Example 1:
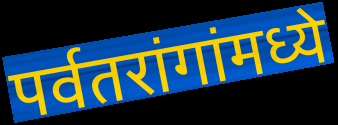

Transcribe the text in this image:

पर्वतरांगांमध्ये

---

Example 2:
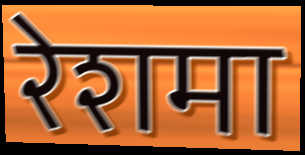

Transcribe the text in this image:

रेशमा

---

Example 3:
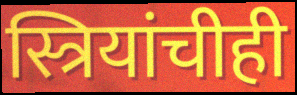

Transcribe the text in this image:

स्त्रियांचीही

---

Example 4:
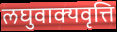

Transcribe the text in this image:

लघुवाक्यवृत्ति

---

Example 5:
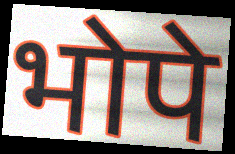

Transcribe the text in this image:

भोपे